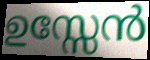
ഉസ്സേൻ